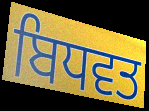
ਬਿਧਵਤ